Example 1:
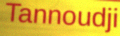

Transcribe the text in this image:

Tannoudji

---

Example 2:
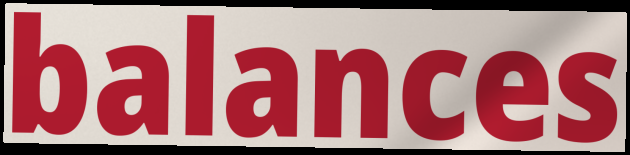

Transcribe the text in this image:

balances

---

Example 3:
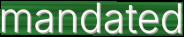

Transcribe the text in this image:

mandated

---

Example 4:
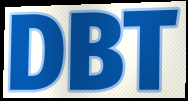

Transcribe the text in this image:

DBT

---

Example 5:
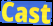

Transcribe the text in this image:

Cast